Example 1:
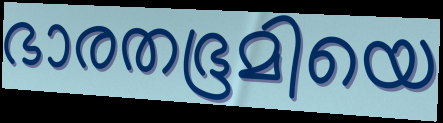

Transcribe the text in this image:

ഭാരതഭൂമിയെ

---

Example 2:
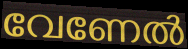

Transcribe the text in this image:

വേണേൽ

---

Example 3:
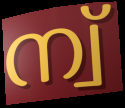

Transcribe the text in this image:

ന്വ്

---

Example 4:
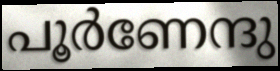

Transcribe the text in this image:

പൂർണേന്ദു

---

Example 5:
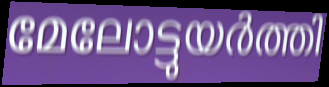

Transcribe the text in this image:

മേലോട്ടുയർത്തി